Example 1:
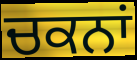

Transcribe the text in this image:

ਚਕਨਾਂ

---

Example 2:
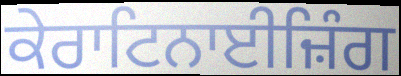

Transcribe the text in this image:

ਕੇਰਾਟਿਨਾਈਜ਼ਿੰਗ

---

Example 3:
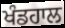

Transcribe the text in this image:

ਖੰਡਹਾਲ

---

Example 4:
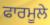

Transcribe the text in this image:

ਫਾਰਮੂਲੇ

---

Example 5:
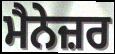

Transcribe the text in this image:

ਮੈਨੇਜ਼ਰ